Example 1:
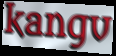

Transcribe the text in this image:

kangu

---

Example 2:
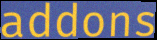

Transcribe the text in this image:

addons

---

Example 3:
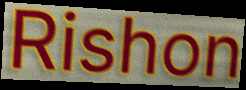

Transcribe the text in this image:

Rishon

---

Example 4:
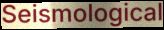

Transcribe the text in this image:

Seismological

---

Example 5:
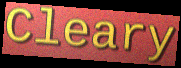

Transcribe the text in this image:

Cleary